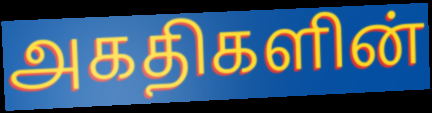
அகதிகளின்